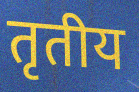
तृतीय